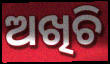
ଅଖିଚି